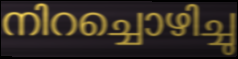
നിറച്ചൊഴിച്ചു